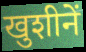
खुशीनें